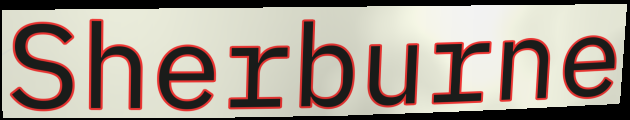
Sherburne